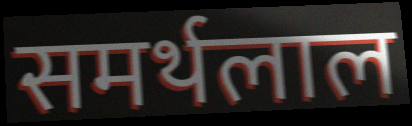
समर्थलाल